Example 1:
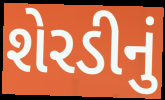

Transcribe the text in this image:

શેરડીનું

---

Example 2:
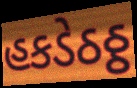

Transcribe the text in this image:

હકડેઠઠ્ઠ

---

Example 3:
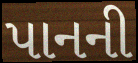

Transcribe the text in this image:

પાનની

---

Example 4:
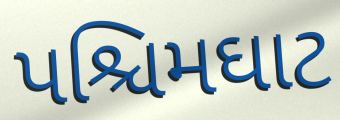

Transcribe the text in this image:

પશ્ચિમઘાટ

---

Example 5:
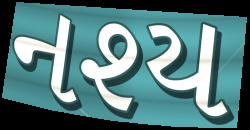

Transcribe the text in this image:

નશ્ય